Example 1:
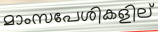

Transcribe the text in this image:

മാംസപേശികളില്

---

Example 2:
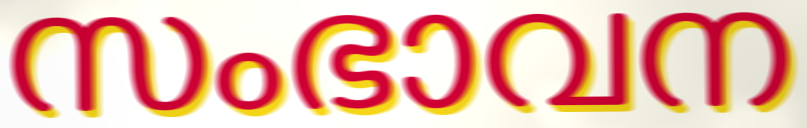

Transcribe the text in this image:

സംഭാവന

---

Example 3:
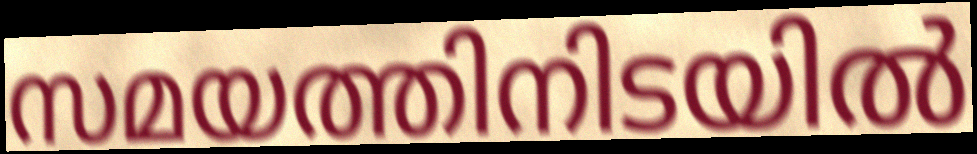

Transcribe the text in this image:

സമയത്തിനിടയിൽ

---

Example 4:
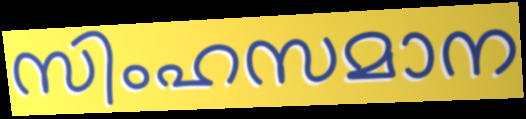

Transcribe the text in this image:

സിംഹസമാന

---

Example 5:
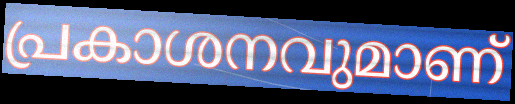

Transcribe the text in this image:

പ്രകാശനവുമാണ്